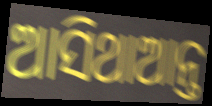
ଆସିଥାଆନ୍ତ